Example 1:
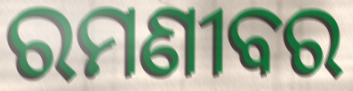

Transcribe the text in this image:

ରମଣୀବର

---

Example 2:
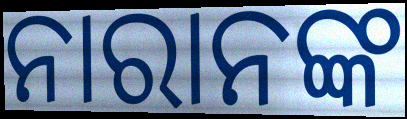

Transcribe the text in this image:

ନାରାନଙ୍କ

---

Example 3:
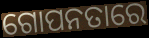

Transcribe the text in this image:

ଗୋପନତାରେ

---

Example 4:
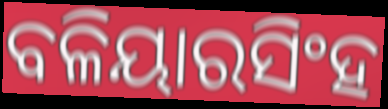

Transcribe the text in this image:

ବଳିୟାରସିଂହ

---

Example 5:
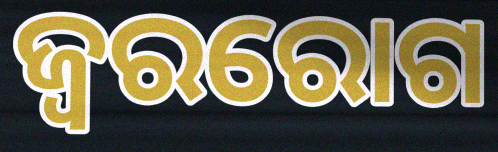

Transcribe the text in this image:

ଜ୍ୱରରୋଗ